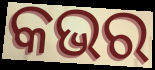
କଭର